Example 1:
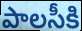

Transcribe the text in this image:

పాలసీకి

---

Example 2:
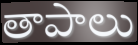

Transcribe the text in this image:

తాపాలు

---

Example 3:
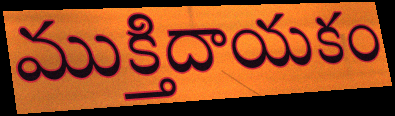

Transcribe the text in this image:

ముక్తిదాయకం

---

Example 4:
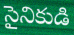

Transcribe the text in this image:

సైనికుడి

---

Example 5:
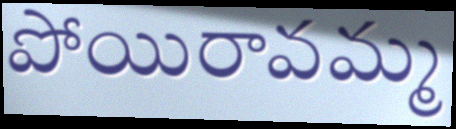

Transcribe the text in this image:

పోయిరావమ్మ